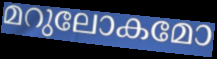
മറുലോകമോ